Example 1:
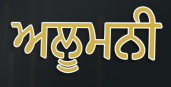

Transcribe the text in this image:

ਅਲੂਮਨੀ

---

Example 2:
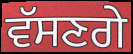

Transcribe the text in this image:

ਵੱਸਣਗੇ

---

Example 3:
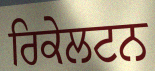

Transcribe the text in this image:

ਰਿਕੇਲਟਨ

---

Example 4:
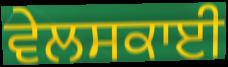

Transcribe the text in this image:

ਵੇਲਸਕਾਈ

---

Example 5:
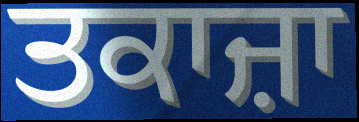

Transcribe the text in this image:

ਤਕਾਜ਼ਾ